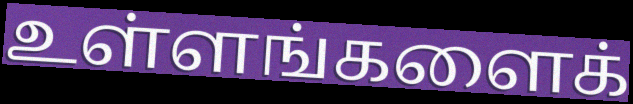
உள்ளங்களைக்